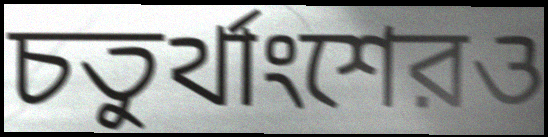
চতুর্থাংশেরও